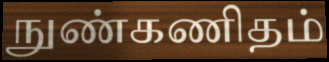
நுண்கணிதம்